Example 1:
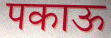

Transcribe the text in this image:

पकाऊ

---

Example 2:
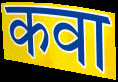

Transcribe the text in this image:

कवा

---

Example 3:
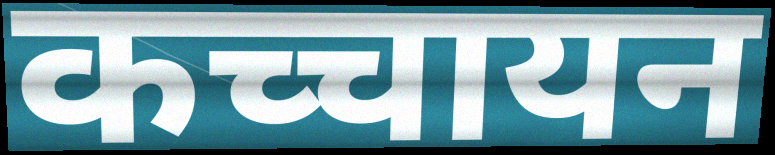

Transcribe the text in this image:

कच्चायन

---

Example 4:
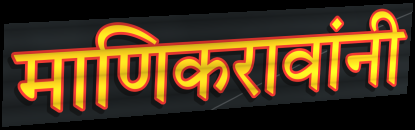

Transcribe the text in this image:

माणिकरावांनी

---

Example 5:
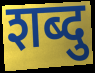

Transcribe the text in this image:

शब्दु